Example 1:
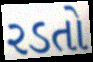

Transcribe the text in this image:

રડતો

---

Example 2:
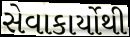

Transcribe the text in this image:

સેવાકાર્યોથી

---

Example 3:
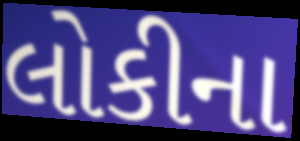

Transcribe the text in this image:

લોકીના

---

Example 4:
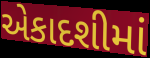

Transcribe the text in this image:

એકાદશીમાં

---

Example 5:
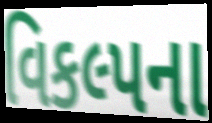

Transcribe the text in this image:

વિકલ્પના